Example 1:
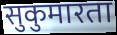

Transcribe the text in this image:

सुकुमारता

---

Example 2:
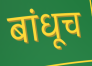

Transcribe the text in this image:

बांधूच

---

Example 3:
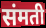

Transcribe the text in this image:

संमती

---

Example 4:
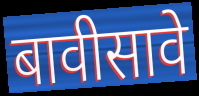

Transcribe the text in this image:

बावीसावे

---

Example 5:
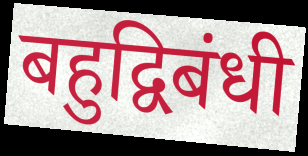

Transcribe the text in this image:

बहुद्विबंधी